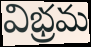
విభ్రమ